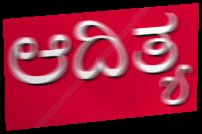
ಆದಿತ್ಯ